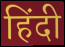
हिंदी